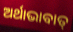
ଅର୍ଥାଭାବାତ୍